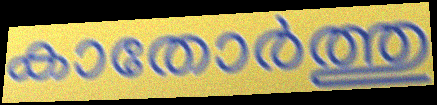
കാതോർത്തു